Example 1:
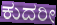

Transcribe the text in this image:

ಕುದರೀ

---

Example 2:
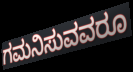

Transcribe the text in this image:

ಗಮನಿಸುವವರೂ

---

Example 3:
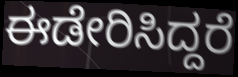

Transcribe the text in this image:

ಈಡೇರಿಸಿದ್ದರೆ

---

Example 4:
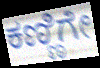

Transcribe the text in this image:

ಕಣ್ಣಿಗೇ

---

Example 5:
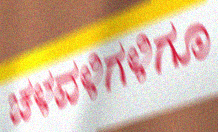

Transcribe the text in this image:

ಚಳವಳಿಗಳಿಗೂ